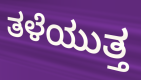
ತಳೆಯುತ್ತ